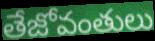
తేజోవంతులు